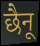
छैनू